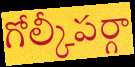
గోల్కీపర్గా